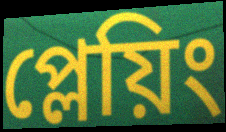
প্লেয়িং